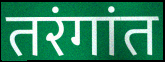
तरंगांत